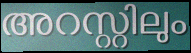
അറസ്റ്റിലും